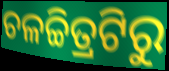
ଚଳଚ୍ଚିତ୍ରଟିରୁ